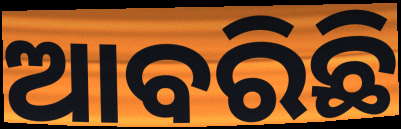
ଆବରିଛି